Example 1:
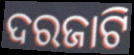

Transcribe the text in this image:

ଦରଜାଟି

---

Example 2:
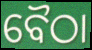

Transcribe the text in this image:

ବୈଠା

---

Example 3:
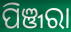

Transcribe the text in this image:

ପିଞ୍ଜରା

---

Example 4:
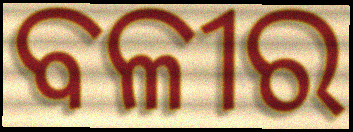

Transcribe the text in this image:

ବଳୀର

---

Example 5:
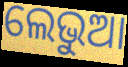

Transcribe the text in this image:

ଲେଭୁଆ